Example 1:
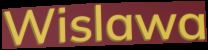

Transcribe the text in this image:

Wislawa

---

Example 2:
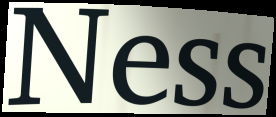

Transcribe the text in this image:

Ness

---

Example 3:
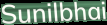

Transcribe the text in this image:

Sunilbhai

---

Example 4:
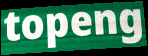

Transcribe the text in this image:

topeng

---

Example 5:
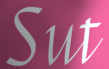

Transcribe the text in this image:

Sut